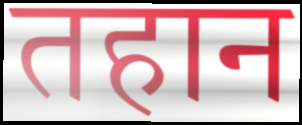
तहान